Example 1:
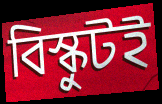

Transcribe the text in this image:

বিস্কুটই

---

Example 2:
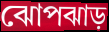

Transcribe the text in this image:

ঝোপঝাড়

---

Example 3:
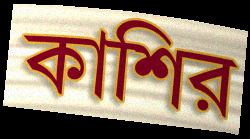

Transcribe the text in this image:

কাশির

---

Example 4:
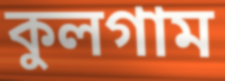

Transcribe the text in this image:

কুলগাম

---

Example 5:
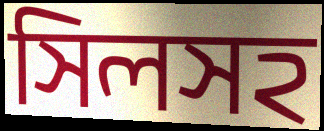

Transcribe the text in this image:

সিলসহ